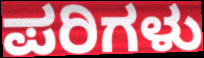
ಪರಿಗಳು